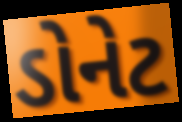
ડોનેટ